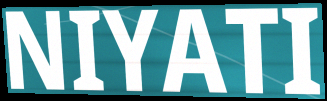
NIYATI